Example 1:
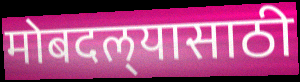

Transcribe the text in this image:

मोबदल्यासाठी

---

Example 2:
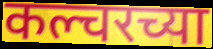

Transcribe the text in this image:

कल्चरच्या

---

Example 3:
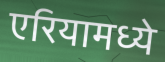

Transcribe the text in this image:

एरियामध्ये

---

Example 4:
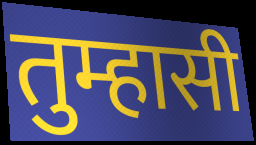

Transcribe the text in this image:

तुम्हासी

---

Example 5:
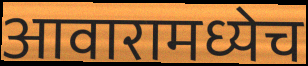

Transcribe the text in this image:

आवारामध्येच